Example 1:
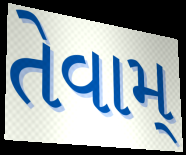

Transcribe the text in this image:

તેવામ્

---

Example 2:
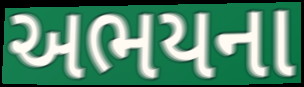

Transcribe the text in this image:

અભયના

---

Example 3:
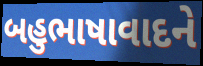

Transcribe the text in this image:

બહુભાષાવાદને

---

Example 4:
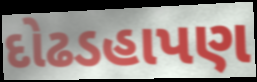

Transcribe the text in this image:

દોઢડહાપણ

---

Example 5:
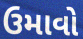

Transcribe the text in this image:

ઉમાવો